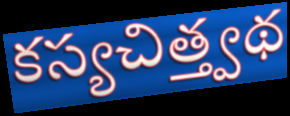
కస్యచిత్త్వథ